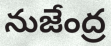
నుజేంద్ర